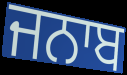
ਜਨਾਬ